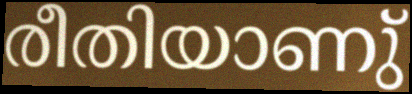
രീതിയാണു്